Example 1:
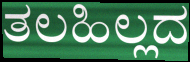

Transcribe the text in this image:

ತಲಹಿಲ್ಲದ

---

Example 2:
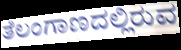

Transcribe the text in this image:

ತೆಲಂಗಾಣದಲ್ಲಿರುವ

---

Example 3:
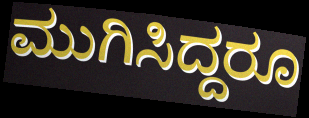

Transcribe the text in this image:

ಮುಗಿಸಿದ್ದರೂ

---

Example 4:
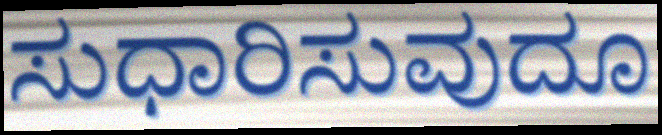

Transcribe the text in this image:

ಸುಧಾರಿಸುವುದೂ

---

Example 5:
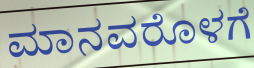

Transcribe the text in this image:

ಮಾನವರೊಳಗೆ